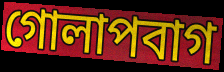
গোলাপবাগ